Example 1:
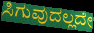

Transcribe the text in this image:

ಸಿಗುವುದಲ್ಲದೇ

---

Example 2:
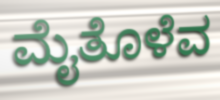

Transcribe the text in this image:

ಮೈತೊಳೆವ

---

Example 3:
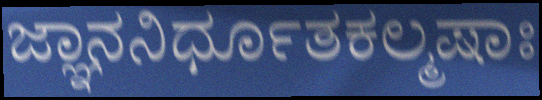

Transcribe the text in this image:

ಜ್ಞಾನನಿರ್ಧೂತಕಲ್ಮಷಾಃ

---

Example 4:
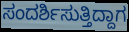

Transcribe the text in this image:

ಸಂದರ್ಶಿಸುತ್ತಿದ್ದಾಗ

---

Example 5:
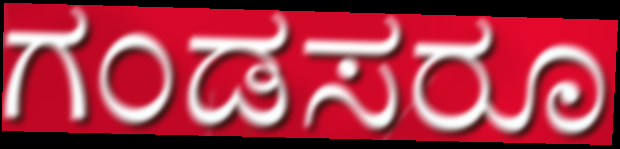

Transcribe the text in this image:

ಗಂಡಸರೂ